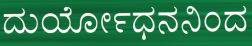
ದುರ್ಯೋಧನನಿಂದ